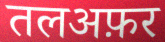
तलअफ़र